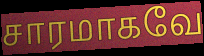
சாரமாகவே